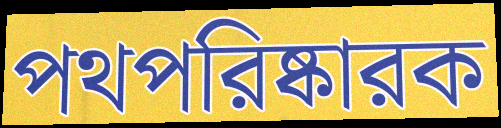
পথপরিষ্কারক